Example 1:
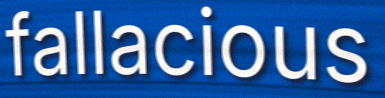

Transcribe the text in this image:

fallacious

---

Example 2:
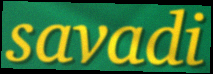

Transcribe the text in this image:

savadi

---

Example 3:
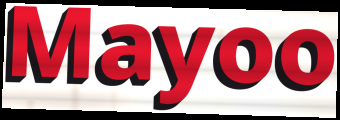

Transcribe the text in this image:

Mayoo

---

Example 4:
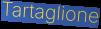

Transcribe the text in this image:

Tartaglione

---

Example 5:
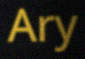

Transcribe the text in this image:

Ary